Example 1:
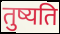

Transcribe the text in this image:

तुष्यति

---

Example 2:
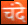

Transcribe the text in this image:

चंदे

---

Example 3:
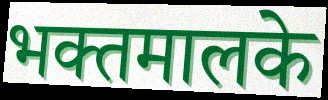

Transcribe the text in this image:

भक्तमालके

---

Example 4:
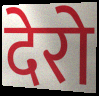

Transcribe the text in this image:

देरो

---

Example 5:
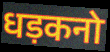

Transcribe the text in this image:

धड़कनो